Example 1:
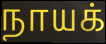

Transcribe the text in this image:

நாயக்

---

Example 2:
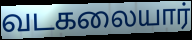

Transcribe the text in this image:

வடகலையார்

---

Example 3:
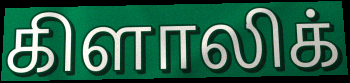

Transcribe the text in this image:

கிளாலிக்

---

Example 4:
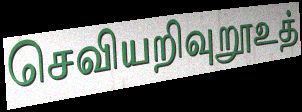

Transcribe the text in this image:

செவியறிவுறூஉத்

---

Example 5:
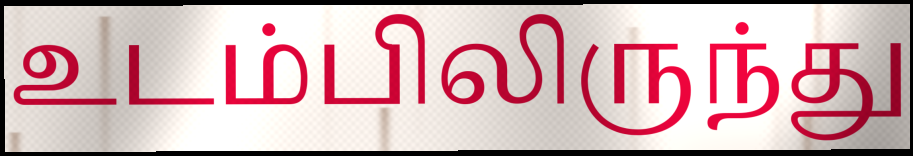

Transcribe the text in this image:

உடம்பிலிருந்து